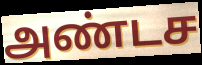
அண்டச